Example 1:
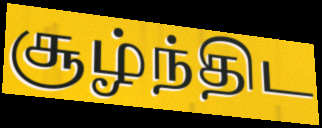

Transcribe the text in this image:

சூழ்ந்திட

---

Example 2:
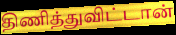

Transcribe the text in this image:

திணித்துவிட்டான்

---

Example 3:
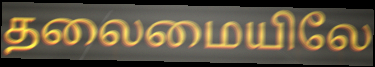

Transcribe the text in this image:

தலைமையிலே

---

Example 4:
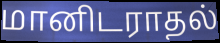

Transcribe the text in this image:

மானிடராதல்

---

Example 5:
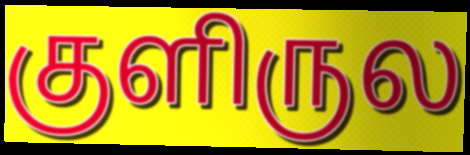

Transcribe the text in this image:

குளிருல